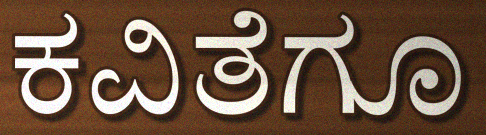
ಕವಿತೆಗೂ